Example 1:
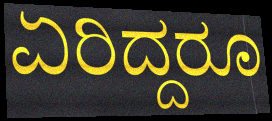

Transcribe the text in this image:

ಏರಿದ್ದರೂ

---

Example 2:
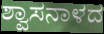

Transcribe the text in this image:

ಶ್ವಾಸನಾಳದ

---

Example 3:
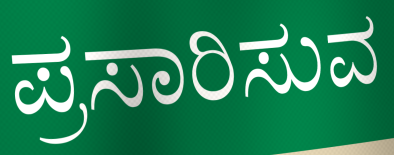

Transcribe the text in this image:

ಪ್ರಸಾರಿಸುವ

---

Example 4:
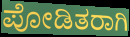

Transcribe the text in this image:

ಪೋಡಿತರಾಗಿ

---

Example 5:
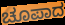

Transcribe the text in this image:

ಚೂಪಾದ